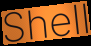
Shell